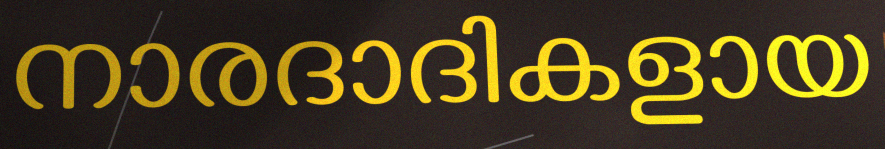
നാരദാദികളായ